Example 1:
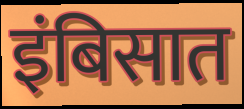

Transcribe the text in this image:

इंबिसात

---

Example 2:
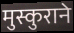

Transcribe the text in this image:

मुस्‍कुराने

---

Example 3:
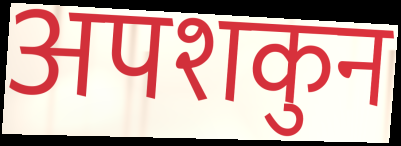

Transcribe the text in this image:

अपशकुन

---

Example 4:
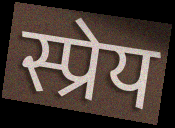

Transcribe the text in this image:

स्प्रेय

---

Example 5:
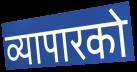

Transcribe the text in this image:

व्यापारको